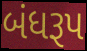
બંધરૂપ